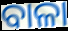
ବାଳା